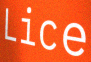
Lice